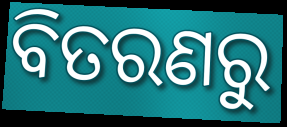
ବିତରଣରୁ